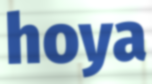
hoya